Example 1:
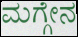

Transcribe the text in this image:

ಮಗ್ಗೇನ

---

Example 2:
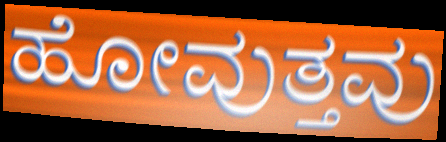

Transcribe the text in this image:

ಹೋವುತ್ತವು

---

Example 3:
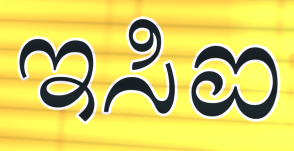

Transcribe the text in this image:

ಇಸಿಐ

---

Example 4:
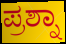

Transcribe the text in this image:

ಪ್ರಶ್ನಾ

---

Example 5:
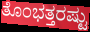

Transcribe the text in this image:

ತೊಂಭತ್ತರಷ್ಟು